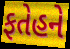
ફતેહને